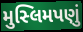
મુસ્લિમપણું